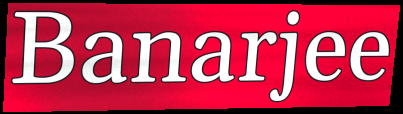
Banarjee